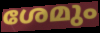
ശേമും